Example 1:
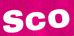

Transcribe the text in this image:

Sco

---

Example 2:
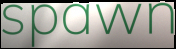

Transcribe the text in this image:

spawn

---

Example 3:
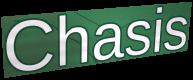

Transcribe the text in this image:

Chasis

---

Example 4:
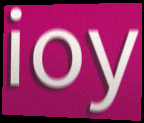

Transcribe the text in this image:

ioy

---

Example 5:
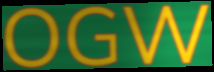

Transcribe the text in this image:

OGW